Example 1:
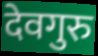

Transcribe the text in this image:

देवगुरु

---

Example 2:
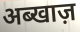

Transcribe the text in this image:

अब्खाज़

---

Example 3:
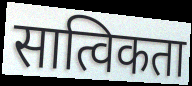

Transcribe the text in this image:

सात्विकता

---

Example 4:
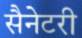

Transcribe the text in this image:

सैनेटरी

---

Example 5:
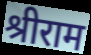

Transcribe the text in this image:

श्रीराम